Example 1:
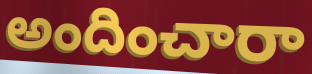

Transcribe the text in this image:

అందించారా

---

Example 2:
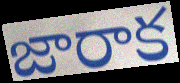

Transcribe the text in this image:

జారాక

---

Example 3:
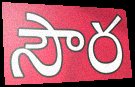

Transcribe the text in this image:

సౌర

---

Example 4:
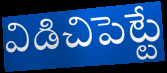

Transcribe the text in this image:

విడిచిపెట్టే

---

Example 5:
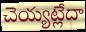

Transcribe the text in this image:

చెయ్యట్లేదా